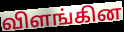
விளங்கின